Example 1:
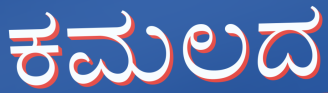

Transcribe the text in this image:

ಕಮಲದ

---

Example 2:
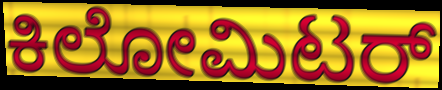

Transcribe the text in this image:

ಕಿಲೋಮಿಟರ್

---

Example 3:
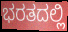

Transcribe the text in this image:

ಭರತದಲ್ಲಿ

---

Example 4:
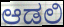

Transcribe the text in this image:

ಆಡಲಿ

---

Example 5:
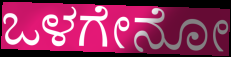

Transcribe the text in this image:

ಒಳಗೇನೋ